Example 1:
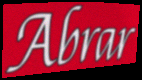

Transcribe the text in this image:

Abrar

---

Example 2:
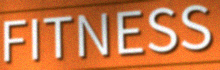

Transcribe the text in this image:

FITNESS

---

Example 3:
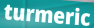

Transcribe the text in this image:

turmeric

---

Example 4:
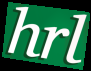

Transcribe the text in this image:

hrl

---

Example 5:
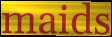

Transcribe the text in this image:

maids